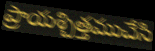
ప్రాయశ్చిత్తముచేసి